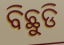
ବିଛୁଡି